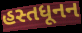
હસ્તધૂનન